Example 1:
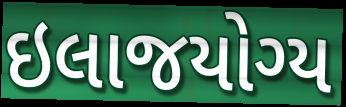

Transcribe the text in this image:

ઇલાજયોગ્ય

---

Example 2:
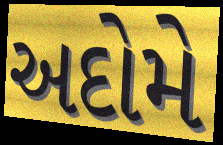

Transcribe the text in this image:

અદોમે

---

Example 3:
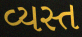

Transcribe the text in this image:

વ્યસ્ત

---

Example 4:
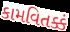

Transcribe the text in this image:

કામવિતક્કં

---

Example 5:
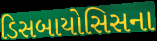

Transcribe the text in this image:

ડિસબાયોસિસના